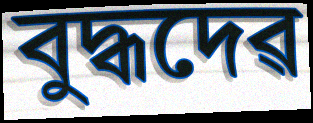
বুদ্ধদেৱ